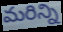
మరిన్ని